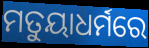
ମତୁୟାଧର୍ମରେ